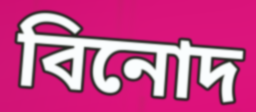
বিনোদ